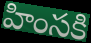
హింసకి